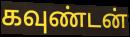
கவுண்டன்